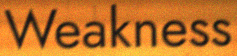
Weakness